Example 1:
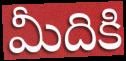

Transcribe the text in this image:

మీదికి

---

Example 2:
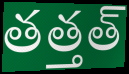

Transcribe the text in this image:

తత్తత్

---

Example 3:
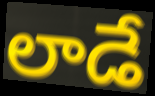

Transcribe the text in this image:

లాడే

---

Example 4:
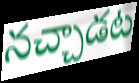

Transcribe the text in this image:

నచ్చాడట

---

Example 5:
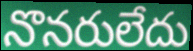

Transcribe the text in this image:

నొనరులేదు